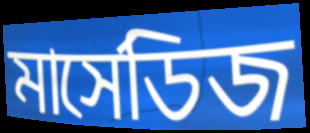
মার্সেডিজ